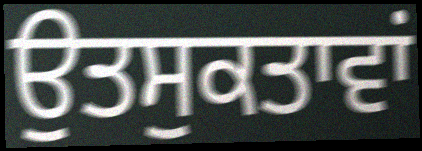
ਉਤਸੁਕਤਾਵਾਂ